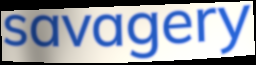
savagery